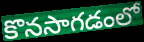
కొనసాగడంలో